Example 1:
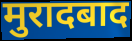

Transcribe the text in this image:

मुरादबाद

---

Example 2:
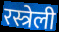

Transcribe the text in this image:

रस्त्रेली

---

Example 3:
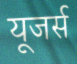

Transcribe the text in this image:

यूजर्स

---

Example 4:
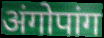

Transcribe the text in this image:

अंगोपांग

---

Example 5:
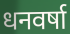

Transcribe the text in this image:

धनवर्षा